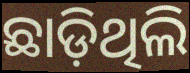
ଛାଡ଼ିଥିଲି